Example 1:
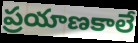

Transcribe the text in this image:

ప్రయాణకాలే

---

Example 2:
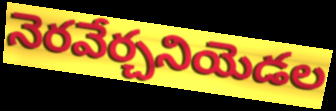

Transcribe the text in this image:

నెరవేర్చనియెడల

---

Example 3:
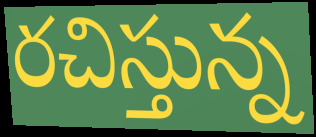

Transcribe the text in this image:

రచిస్తున్న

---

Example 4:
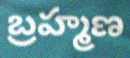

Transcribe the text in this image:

బ్రహ్మణ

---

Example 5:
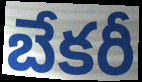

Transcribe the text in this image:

బేకరీ